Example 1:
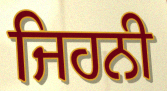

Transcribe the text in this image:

ਜਿਹਨੀ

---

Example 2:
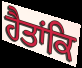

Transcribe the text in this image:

ਹੈਤਾਂਕਿ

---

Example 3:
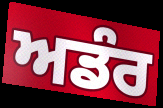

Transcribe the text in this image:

ਅਡੰਰ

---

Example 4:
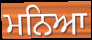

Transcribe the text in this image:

ਮਨਿਆ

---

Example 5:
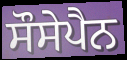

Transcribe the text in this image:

ਸੌਸੇਪੈਨ